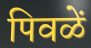
पिवळें